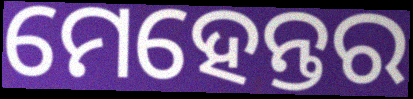
ମେହେନ୍ତର